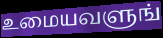
உமையவளுங்